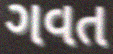
ગવત